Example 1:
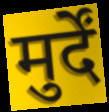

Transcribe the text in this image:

मुर्दें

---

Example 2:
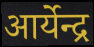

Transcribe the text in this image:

आर्येन्द्र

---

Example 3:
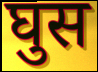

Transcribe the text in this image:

घुस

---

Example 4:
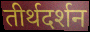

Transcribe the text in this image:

तीर्थदर्शन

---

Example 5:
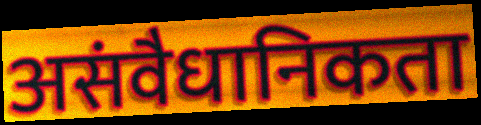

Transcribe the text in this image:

असंवैधानिकता